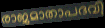
രാജമാതാപദവി